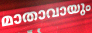
മാതാവായും